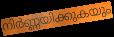
നിർണ്ണയിക്കുകയും